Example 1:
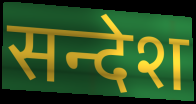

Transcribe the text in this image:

सन्देश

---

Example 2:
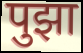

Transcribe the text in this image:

पुझा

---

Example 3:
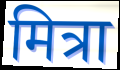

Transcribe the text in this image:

मित्रा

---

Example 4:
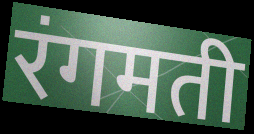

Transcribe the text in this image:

रंगमती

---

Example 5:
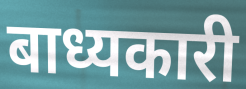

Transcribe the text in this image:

बाध्यकारी